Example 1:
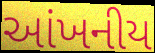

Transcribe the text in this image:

આંખનીય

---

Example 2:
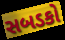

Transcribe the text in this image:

સબડકો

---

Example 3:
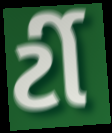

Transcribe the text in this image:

ર્ટી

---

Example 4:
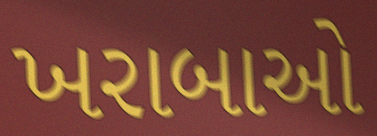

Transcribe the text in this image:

ખરાબાઓ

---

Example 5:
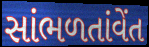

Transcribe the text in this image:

સાંભળતાંવેંત